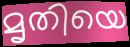
മൃതിയെ